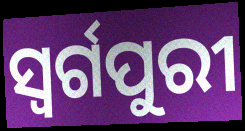
ସ୍ଵର୍ଗପୁରୀ